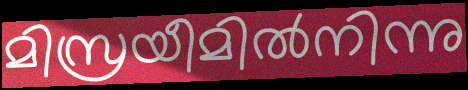
മിസ്രയീമിൽനിന്നു